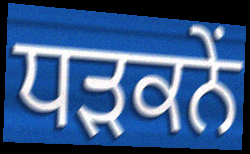
ਧੜਕਨੇਂ